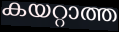
കയറ്റാത്ത